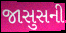
જાસુસની